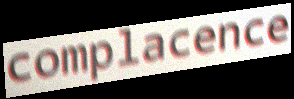
complacence